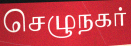
செழுநகர்